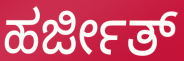
ಹರ್ಜೀತ್